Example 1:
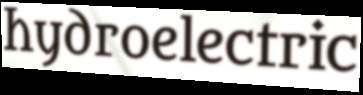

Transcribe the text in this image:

hydroelectric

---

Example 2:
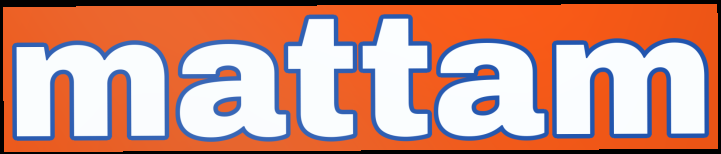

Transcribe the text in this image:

mattam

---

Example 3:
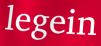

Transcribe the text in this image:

legein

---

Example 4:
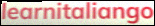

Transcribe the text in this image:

learnitaliango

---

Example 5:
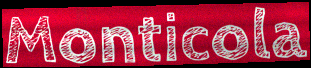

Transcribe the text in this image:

Monticola